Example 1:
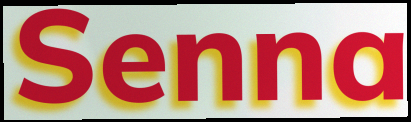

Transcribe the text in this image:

Senna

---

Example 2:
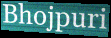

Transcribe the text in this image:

Bhojpuri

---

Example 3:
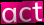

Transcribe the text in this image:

act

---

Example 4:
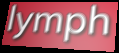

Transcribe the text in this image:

lymph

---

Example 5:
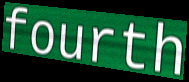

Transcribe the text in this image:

fourth